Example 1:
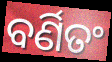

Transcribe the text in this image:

ବର୍ଣିତଂ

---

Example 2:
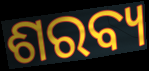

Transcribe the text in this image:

ଶରବ୍ୟ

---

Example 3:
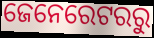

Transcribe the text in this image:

ଜେନେରେଟରରୁ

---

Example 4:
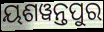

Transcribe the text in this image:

ୟଶୱନ୍ତପୁର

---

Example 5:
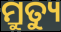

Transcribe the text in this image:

ମ୍ରୁତ୍ୟୁ